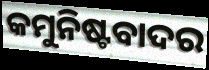
କମୁନିଷ୍ଟବାଦର